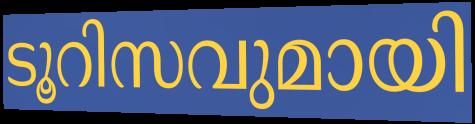
ടൂറിസവുമായി